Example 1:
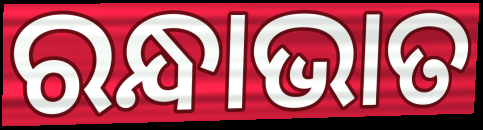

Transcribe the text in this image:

ରନ୍ଧାଭାତ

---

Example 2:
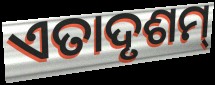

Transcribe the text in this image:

ଏତାଦୃଶମ୍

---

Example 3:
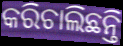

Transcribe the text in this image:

କରିଚାଲିଛନ୍ତି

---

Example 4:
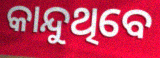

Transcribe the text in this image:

କାନ୍ଦୁଥିବେ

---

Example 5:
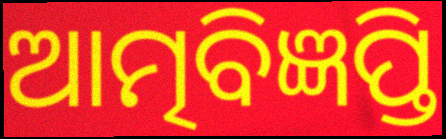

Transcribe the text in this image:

ଆତ୍ମବିଜ୍ଞପ୍ତି